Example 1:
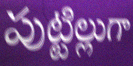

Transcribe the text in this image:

పుట్టిల్లుగా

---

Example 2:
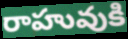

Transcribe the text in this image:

రాహువుకి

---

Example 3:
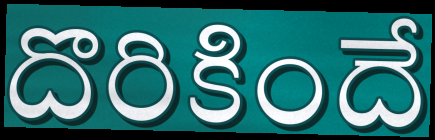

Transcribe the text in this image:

దొరికిందే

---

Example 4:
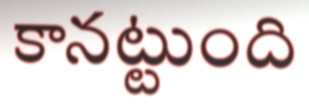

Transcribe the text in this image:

కానట్టుంది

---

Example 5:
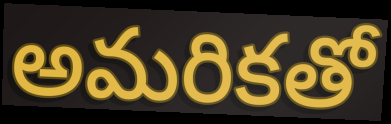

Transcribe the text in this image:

అమరికతో